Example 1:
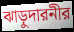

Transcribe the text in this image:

ঝাড়ুদারনীর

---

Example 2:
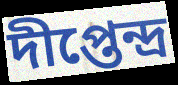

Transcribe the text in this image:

দীপ্তেন্দ্র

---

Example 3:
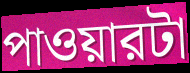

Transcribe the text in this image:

পাওয়ারটা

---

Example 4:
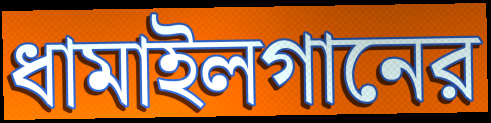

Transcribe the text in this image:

ধামাইলগানের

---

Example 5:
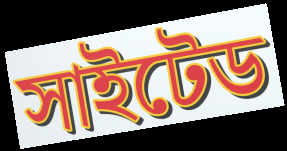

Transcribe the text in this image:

সাইটেড